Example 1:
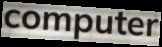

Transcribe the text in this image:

computer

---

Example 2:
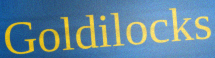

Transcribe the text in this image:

Goldilocks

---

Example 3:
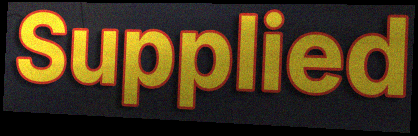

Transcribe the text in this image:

Supplied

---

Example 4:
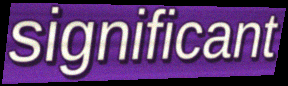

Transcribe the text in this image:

significant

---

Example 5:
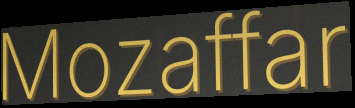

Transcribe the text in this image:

Mozaffar